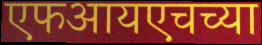
एफआयएचच्या